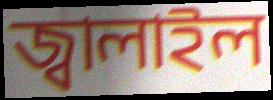
জ্বালাইল